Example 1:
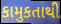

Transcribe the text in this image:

કામુકતાથી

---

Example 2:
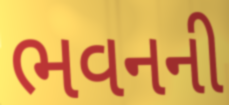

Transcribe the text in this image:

ભવનની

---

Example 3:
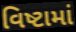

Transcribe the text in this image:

વિષ્ટામાં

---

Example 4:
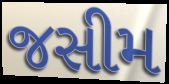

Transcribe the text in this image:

જસીમ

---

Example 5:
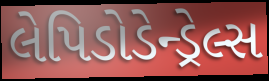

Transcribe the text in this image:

લેપિડોડેન્ડ્રેલ્સ